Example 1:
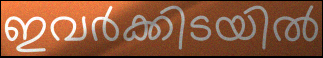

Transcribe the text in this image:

ഇവർക്കിടയിൽ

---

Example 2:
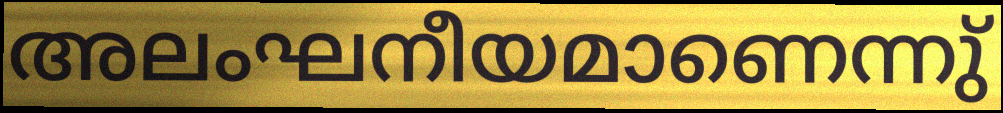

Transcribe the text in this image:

അലംഘനീയമാണെന്നു്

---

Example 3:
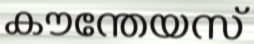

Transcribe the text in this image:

കൗന്തേയസ്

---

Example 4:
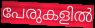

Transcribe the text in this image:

പേരുകളിൽ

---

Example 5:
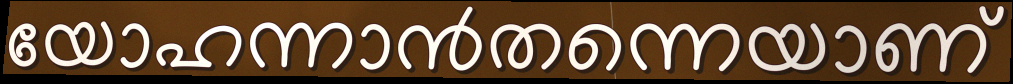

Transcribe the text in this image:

യോഹന്നാൻതന്നെയാണ്